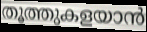
തൂത്തുകളയാൻ